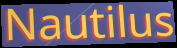
Nautilus